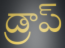
డ్రాప్